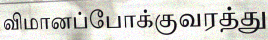
விமானப்போக்குவரத்து